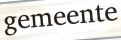
gemeente